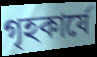
গৃহকার্যে